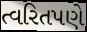
ત્વરિતપણે